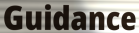
Guidance